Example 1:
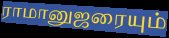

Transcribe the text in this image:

ராமானுஜரையும்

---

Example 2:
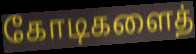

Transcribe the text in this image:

கோடிகளைத்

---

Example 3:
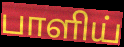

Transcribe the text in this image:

பாளிய்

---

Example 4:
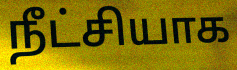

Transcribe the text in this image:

நீட்சியாக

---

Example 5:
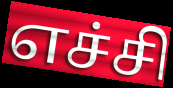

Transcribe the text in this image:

எச்சி